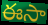
ఈసా